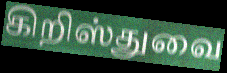
கிறிஸ்துவை